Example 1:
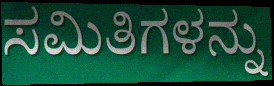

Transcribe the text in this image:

ಸಮಿತಿಗಳನ್ನು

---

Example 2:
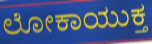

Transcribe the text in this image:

ಲೋಕಾಯುಕ್ತ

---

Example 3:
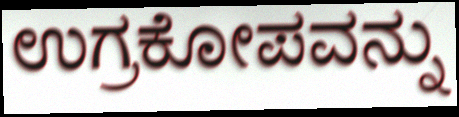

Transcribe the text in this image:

ಉಗ್ರಕೋಪವನ್ನು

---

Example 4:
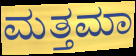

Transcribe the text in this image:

ಮತ್ತಮಾ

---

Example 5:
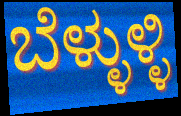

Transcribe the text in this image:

ಬೆಳ್ಳುಳ್ಳಿ